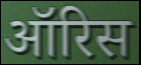
ऑरिस